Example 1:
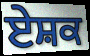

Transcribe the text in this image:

ਏਸ਼ਕ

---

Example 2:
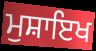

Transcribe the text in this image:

ਮੁਸ਼ਾਇਖ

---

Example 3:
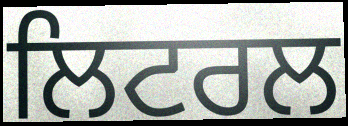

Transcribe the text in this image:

ਲਿਟਰਲ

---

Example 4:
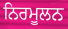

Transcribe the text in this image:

ਨਿਰਮੂਲਨ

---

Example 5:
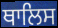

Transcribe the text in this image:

ਥਾਲਿਸ